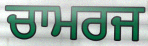
ਚਾਮਰਜ